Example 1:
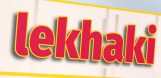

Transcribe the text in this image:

lekhaki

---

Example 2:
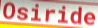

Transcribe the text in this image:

Osiride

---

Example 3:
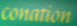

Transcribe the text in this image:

conation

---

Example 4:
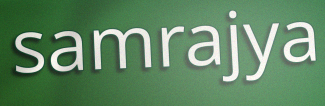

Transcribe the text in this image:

samrajya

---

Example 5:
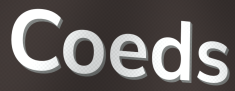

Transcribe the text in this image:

Coeds